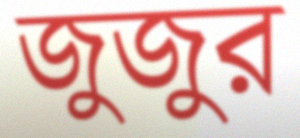
জুজুর